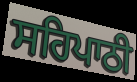
ਸਹਿਪਾਠੀ